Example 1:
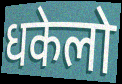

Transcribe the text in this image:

धकेलो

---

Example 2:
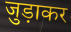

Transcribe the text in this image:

जुड़ाकर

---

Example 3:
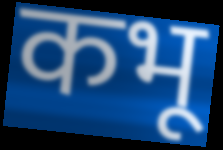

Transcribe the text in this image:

कभू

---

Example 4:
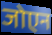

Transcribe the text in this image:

जोएन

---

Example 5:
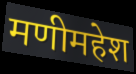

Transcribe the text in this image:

मणीमहेश